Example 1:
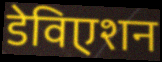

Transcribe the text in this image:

डेविएशन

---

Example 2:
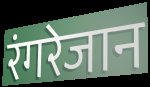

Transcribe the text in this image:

रंगरेजान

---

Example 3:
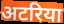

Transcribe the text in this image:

अटरिया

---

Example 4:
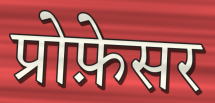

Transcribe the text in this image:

प्रोफ़ेसर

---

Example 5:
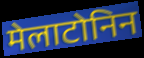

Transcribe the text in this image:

मेलाटोनिन